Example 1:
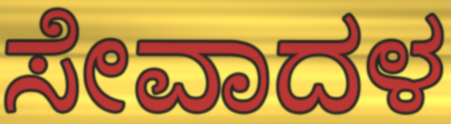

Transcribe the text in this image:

ಸೇವಾದಳ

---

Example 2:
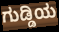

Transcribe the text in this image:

ಗುಡ್ಡಿಯ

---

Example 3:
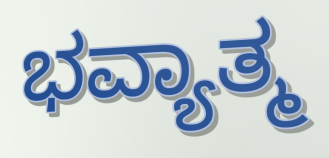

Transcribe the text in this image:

ಭವ್ಯಾತ್ಮ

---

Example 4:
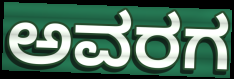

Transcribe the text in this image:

ಅವರಗ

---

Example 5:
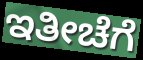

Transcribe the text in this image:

ಇತೀಚೆಗೆ